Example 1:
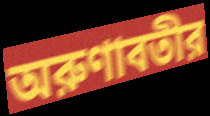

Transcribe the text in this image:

অরুণাবতীর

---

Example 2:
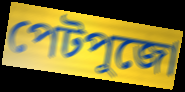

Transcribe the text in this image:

পেটপুজো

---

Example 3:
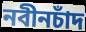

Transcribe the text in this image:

নবীনচাঁদ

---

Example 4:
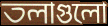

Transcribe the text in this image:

তলাগুলো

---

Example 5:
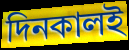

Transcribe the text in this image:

দিনকালই